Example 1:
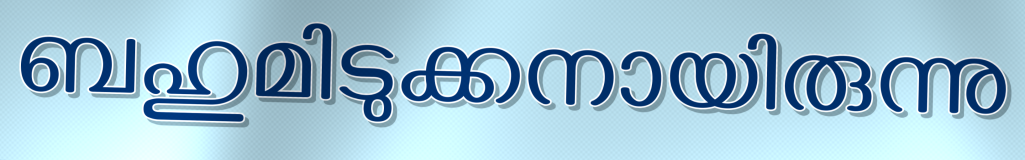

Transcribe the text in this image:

ബഹുമിടുക്കനായിരുന്നു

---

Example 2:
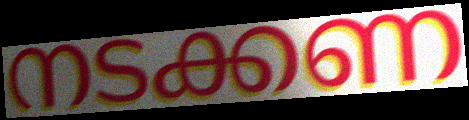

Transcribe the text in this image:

നടക്കണ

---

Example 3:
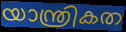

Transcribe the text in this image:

യാന്ത്രികത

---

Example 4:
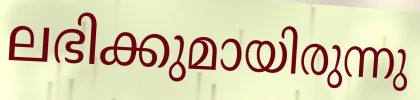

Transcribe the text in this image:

ലഭിക്കുമായിരുന്നു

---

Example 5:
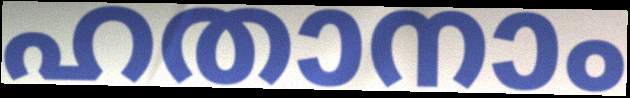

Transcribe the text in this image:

ഹതാനാം